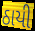
ઠાયી